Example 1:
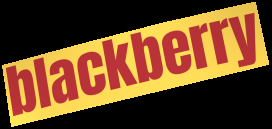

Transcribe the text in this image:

blackberry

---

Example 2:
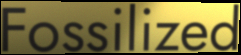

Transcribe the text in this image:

Fossilized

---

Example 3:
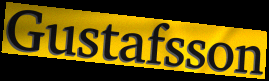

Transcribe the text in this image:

Gustafsson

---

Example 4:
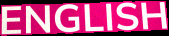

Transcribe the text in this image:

ENGLISH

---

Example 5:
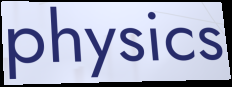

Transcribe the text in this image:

physics